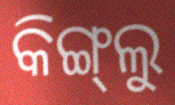
କିଙ୍ଗ୍‌ଲୁ